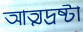
আত্মদ্রষ্টা